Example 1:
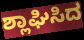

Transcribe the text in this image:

ಶ್ಲಾಘಿಸಿದ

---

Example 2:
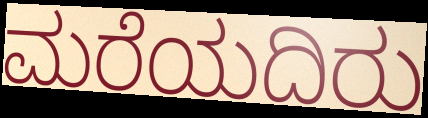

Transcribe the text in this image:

ಮರೆಯದಿರು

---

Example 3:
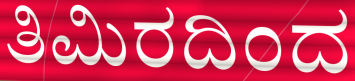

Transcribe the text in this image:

ತಿಮಿರದಿಂದ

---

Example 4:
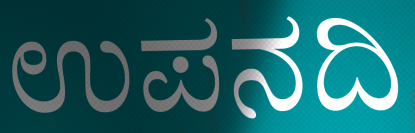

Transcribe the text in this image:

ಉಪನದಿ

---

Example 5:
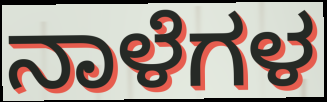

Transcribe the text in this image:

ನಾಳೆಗಳ